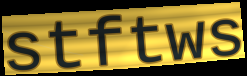
stftws